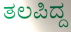
ತಲಪಿದ್ದ